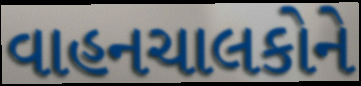
વાહનચાલકોને